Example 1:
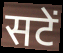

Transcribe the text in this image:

सटें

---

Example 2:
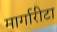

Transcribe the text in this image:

मार्गारीटा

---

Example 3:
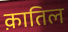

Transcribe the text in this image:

क़ातिल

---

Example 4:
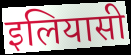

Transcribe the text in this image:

इलियासी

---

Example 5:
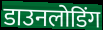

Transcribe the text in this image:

डाउनलोडिंग